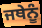
ਜਥੇਨੂੰ